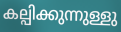
കല്പിക്കുന്നുള്ളു